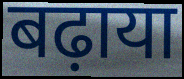
बढ़ाया